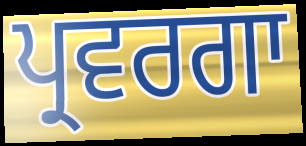
ਪ੍ਰਵਰਗਾ